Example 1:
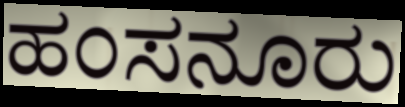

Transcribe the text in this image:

ಹಂಸನೂರು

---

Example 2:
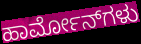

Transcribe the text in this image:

ಹಾರ್ಮೋನ್‌ಗಳು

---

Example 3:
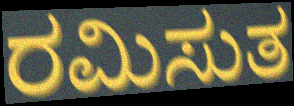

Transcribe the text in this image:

ರಮಿಸುತ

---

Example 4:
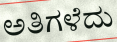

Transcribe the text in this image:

ಅತಿಗಳೆದು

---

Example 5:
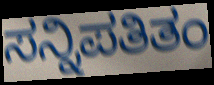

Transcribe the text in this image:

ಸನ್ನಿಪತಿತಂ